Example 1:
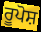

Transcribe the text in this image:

ਰੂਪੋਸ਼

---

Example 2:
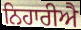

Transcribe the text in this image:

ਨਿਹਾਰੀਐ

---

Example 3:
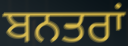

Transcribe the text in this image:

ਬਨਤਰਾਂ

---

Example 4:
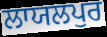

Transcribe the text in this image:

ਲਾਯਲਪੁਰ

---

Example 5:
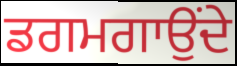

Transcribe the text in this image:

ਡਗਮਗਾਉਂਦੇ